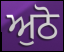
ਅੁਠੋ